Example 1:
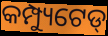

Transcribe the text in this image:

କମ୍ପ୍ୟୁଟେଡ୍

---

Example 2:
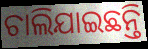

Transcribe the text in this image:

ଚାଲିଯାଇଛନ୍ତି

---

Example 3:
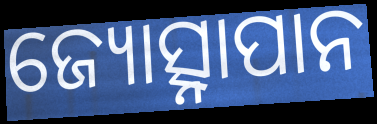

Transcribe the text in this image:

ଜ୍ୟୋତ୍ସ୍ନାପାନ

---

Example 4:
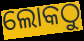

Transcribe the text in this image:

ଲୋକଠୁ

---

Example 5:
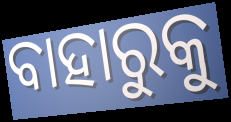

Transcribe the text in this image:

ବାହାରୁକୁ